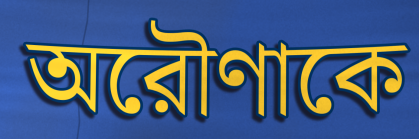
অরৌণাকে